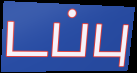
டப்பு